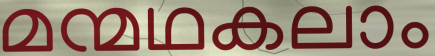
മന്മഥകലാം